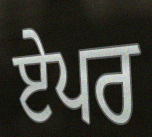
ਏਪਰ